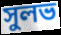
সুলভ